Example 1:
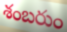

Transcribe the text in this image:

శంబరుం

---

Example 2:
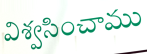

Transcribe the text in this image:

విశ్వసించాము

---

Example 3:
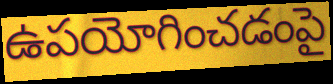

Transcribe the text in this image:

ఉపయోగించడంపై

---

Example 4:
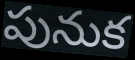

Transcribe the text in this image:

పునుక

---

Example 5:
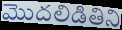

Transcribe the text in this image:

మొదలిడితిని